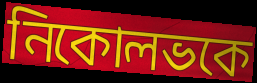
নিকোলভকে